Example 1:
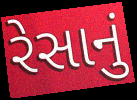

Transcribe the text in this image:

રેસાનું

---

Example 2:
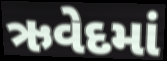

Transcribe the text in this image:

ઋવેદમાં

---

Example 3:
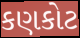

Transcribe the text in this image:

કણકોટ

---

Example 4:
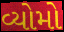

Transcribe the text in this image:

વ્યોમો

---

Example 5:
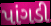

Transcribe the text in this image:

પાંગડી